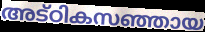
അട്ഠികസഞ്ഞായ